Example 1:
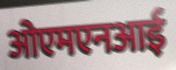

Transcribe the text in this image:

ओएमएनआई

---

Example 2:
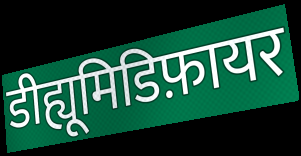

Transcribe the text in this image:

डीह्यूमिडिफ़ायर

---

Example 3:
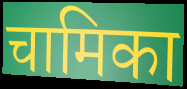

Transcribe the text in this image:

चामिका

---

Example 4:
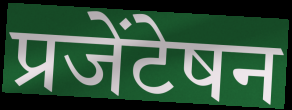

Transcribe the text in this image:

प्रजेंटेषन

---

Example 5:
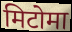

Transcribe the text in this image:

मिटोमा